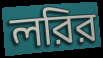
লরির